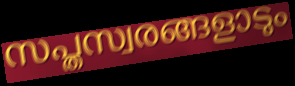
സപ്തസ്വരങ്ങളാടും